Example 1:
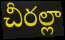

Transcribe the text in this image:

చీరల్లా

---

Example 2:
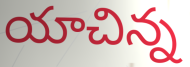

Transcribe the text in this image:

యాచిన్న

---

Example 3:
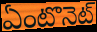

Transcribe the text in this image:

ఏంటొనెట్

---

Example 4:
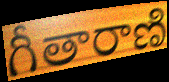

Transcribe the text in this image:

గీతారాణి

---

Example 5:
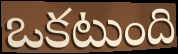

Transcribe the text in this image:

ఒకటుంది